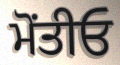
ਮੋਂਤੀਓ